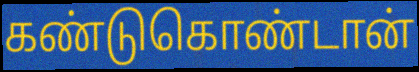
கண்டுகொண்டான்